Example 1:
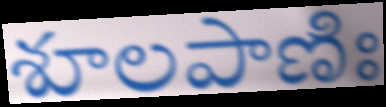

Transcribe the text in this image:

శూలపాణిః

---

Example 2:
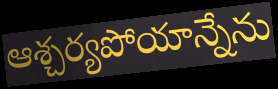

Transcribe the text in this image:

ఆశ్చర్యపోయాన్నేను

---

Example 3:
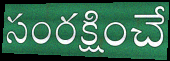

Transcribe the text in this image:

సంరక్షించే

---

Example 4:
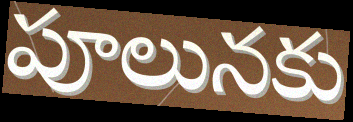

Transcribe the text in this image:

పూలునకు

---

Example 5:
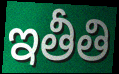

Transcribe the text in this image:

ఇతీతి